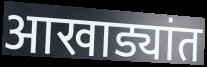
आखाड्यांत